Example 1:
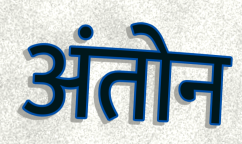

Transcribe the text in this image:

अंतोन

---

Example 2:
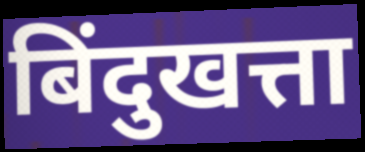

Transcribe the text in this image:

बिंदुखत्ता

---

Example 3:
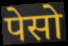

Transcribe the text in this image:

पेसो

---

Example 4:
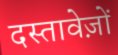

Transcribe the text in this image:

दस्तावेज़ों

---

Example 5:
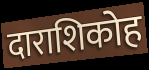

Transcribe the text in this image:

दाराशिकोह